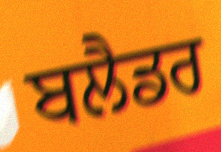
ਬਲੈਡਰ